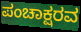
ಪಂಚಾಕ್ಷರವ